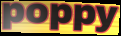
poppy